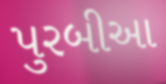
પુરબીઆ